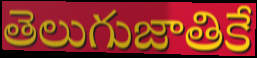
తెలుగుజాతికే